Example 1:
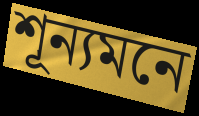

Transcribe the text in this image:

শূন্যমনে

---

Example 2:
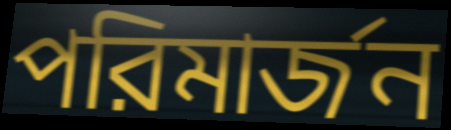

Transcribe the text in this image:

পরিমার্জন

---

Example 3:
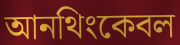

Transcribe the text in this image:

আনথিংকেবল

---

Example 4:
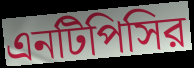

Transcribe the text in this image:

এনটিপিসির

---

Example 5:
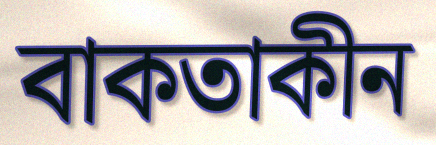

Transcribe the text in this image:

বাকতাকীন